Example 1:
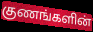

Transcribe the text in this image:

குணங்களின்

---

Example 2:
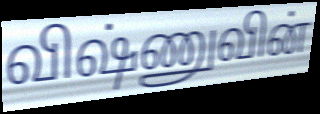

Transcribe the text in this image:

விஷ்ணுவின்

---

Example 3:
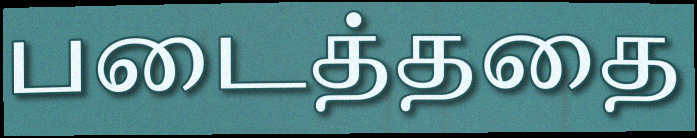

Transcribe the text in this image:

படைத்ததை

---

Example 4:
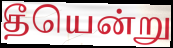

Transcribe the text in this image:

தீயென்று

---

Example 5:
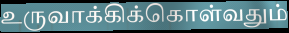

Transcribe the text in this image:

உருவாக்கிக்கொள்வதும்